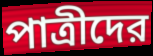
পাত্রীদের